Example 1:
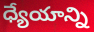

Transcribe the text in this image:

ధ్యేయాన్ని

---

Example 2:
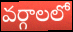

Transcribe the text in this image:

వర్గాలలో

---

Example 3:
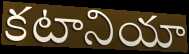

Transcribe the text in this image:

కటానియా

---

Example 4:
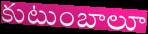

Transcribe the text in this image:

కుటుంబాలూ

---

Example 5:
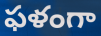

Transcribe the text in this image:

ఫళంగా